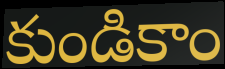
కుండికాం